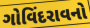
ગોવિંદરાવનો